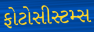
ફોટોસીસ્ટમ્સ